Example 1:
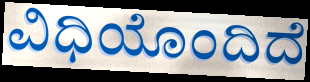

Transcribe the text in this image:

ವಿಧಿಯೊಂದಿದೆ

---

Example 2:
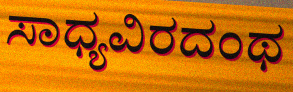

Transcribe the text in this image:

ಸಾಧ್ಯವಿರದಂಥ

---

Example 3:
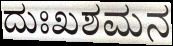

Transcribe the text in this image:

ದುಃಖಶಮನ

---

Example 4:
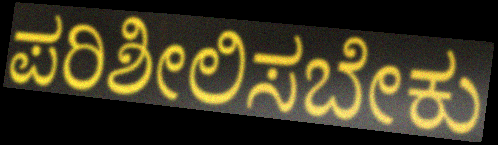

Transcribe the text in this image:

ಪರಿಶೀಲಿಸಬೇಕು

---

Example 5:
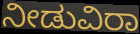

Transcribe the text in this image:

ನೀಡುವಿರಾ